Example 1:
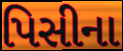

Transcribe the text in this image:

પિસીના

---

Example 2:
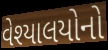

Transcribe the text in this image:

વેશ્યાલયોનો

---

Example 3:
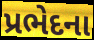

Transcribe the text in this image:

પ્રભેદના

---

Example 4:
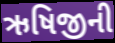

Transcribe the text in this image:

ઋષિજીની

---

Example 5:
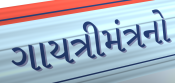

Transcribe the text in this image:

ગાયત્રીમંત્રનો